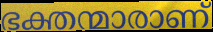
ഭക്തന്മാരാണ്